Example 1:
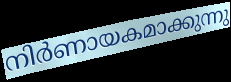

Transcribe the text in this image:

നിർണായകമാക്കുന്നു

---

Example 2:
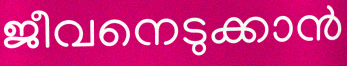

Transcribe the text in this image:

ജീവനെടുക്കാൻ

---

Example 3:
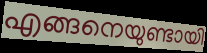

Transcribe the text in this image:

എങ്ങനെയുണ്ടായി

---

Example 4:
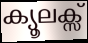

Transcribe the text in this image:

ക്യൂലക്സ്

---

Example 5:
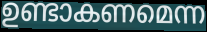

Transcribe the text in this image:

ഉണ്ടാകണമെന്ന